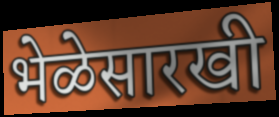
भेळेसारखी